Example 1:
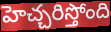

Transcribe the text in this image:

హెచ్చరిస్తోంది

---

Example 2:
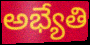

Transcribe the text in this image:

అభ్యేతి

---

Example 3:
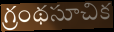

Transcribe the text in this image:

గ్రంథసూచిక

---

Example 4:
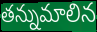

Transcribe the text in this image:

తన్నుమాలిన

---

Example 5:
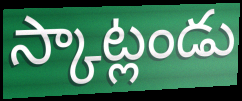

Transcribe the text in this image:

స్కాట్లండు